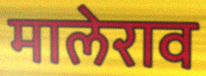
मालेराव